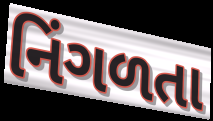
નિંગળતા